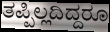
ತಪ್ಪಿಲ್ಲದಿದ್ದರೂ